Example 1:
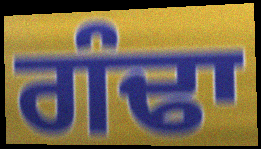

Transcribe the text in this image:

ਗੰਢਾ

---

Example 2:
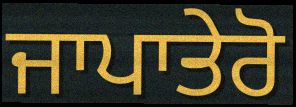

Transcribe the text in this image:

ਜਾਪਾਤੇਰੋ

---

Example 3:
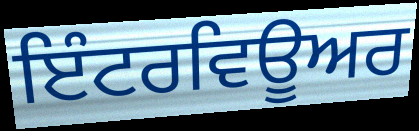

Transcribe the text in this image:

ਇੰਟਰਵਿਊਅਰ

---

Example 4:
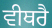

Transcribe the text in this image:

ਵੀਥਰੈ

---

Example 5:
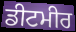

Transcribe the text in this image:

ਡੀਟਮੀਰ